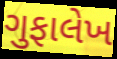
ગુફાલેખ